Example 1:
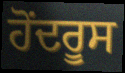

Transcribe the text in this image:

ਹੋਂਦਰੂਸ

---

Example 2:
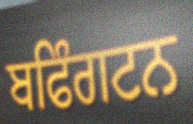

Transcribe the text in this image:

ਬਫਿੰਗਟਨ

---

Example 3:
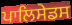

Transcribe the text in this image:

ਪਾਲਿਸੇਡਸ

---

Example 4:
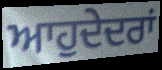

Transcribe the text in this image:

ਆਹੁਦੇਦਰਾਂ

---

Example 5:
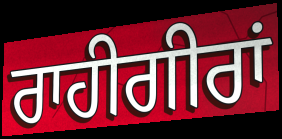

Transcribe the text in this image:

ਰਾਹੀਗੀਰਾਂ